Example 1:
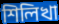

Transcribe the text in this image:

শিলিখা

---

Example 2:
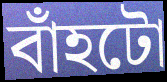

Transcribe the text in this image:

বাঁহটো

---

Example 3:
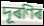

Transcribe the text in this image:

দূৰণিৰ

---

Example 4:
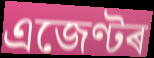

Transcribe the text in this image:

এজেণ্টৰ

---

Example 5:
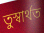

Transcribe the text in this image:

তুস্বাৰ্থত